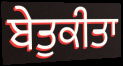
ਬੇਤੁਕੀਤਾ